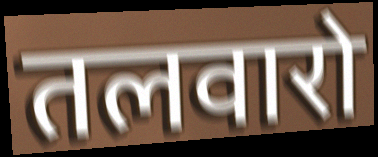
तलवारो